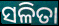
ସଳିତା